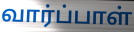
வார்ப்பாள்